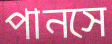
পানসে